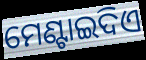
ମେଣ୍ଟାଇଦିଏ